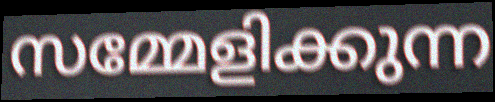
സമ്മേളിക്കുന്ന